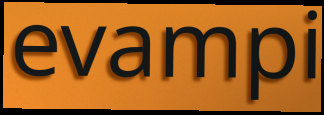
evampi